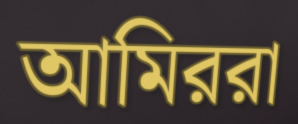
আমিররা